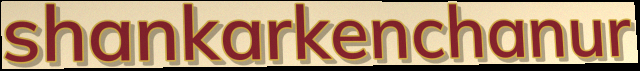
shankarkenchanur